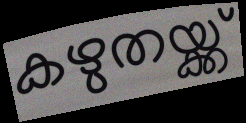
കഴുതയ്ക്ക്